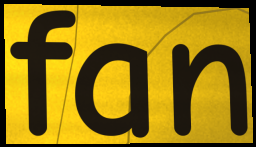
fan